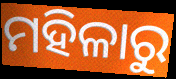
ମହିଳାରୁ